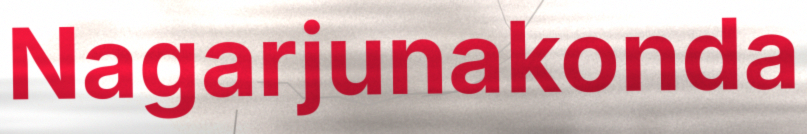
Nagarjunakonda